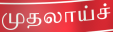
முதலாய்ச்